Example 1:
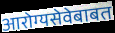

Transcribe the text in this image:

आरोग्यसेवेबाबत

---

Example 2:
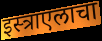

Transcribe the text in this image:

इस्त्राएलाचा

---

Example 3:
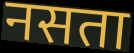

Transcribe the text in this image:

नसता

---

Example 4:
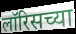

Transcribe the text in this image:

लॉरिसच्या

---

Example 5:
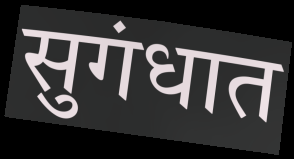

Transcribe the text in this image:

सुगंधात